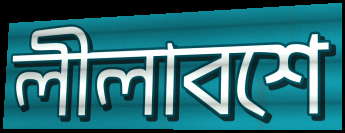
লীলাবশে